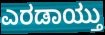
ಎರಡಾಯ್ತು